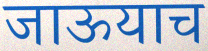
जाऊयाच